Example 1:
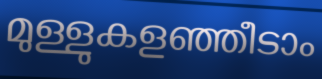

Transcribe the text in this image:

മുള്ളുകളഞ്ഞീടാം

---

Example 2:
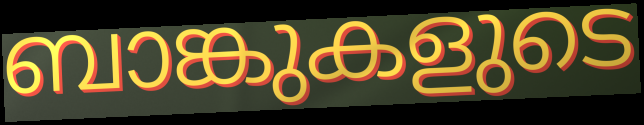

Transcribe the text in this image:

ബാങ്കുകളുടെ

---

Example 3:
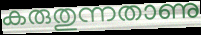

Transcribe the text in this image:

കരുതുന്നതാണു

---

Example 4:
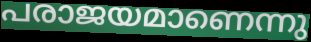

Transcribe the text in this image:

പരാജയമാണെന്നു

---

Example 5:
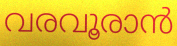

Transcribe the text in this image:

വരവൂരാൻ